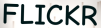
FLICKR